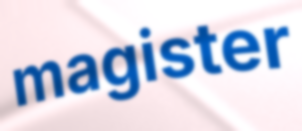
magister